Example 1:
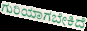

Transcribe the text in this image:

ಗುರಿಯಾಗಬೇಕಿದೆ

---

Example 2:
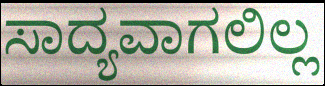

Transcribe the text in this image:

ಸಾದ್ಯವಾಗಲಿಲ್ಲ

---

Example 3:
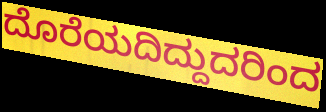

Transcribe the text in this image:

ದೊರೆಯದಿದ್ದುದರಿಂದ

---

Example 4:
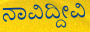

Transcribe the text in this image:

ನಾವಿದ್ದೀವಿ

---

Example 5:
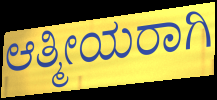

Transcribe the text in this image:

ಆತ್ಮೀಯರಾಗಿ